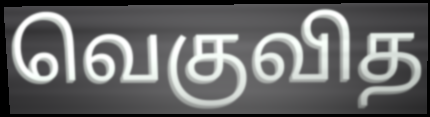
வெகுவித